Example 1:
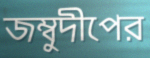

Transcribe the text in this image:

জম্বুদীপের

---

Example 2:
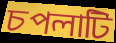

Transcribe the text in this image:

চপলাটি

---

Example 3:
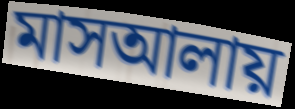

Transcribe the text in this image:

মাসআলায়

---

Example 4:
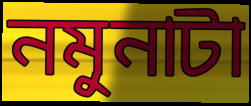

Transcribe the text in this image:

নমুনাটা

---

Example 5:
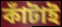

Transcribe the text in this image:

কাঁটাই